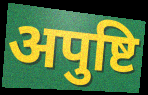
अपुष्टि